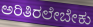
ಅರಿತಿರಲೇಬೇಕು